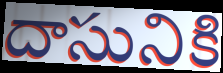
దాసునికి